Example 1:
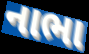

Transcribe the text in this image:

નાભા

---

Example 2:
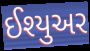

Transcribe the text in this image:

ઈશ્યુઅર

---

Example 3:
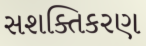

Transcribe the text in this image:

સશક્તિકરણ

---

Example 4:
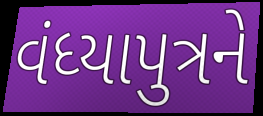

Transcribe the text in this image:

વંધ્યાપુત્રને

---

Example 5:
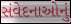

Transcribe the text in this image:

સંવેદનાઓનું